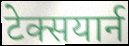
टेक्सयार्न